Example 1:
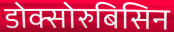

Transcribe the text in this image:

डोक्सोरुबिसिन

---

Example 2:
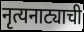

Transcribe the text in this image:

नृत्यनाट्याची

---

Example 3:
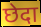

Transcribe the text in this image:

छेदा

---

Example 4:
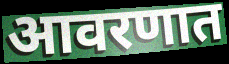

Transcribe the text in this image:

आवरणात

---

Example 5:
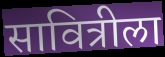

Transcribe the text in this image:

सावित्रीला